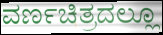
ವರ್ಣಚಿತ್ರದಲ್ಲೂ